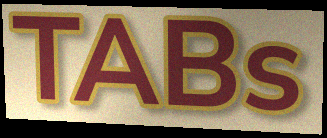
TABs